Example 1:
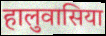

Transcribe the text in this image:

हालुवासिया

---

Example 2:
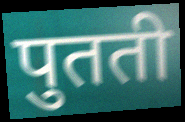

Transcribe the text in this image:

पुतती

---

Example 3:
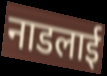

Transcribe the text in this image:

नाडलाई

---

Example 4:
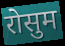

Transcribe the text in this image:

रोसुम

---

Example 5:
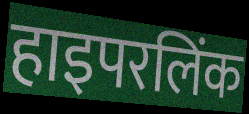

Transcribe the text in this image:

हाइपरलिंक